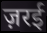
ज़रई